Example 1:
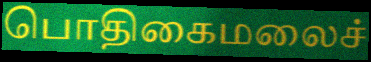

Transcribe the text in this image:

பொதிகைமலைச்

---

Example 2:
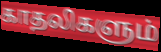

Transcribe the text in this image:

காதலிகளும்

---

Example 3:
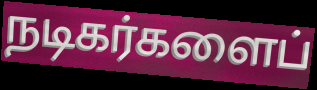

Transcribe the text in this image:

நடிகர்களைப்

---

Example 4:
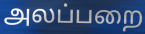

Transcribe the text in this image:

அலப்பறை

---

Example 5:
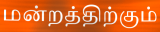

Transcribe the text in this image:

மன்றத்திற்கும்